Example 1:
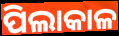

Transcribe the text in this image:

ପିଲାକାଳ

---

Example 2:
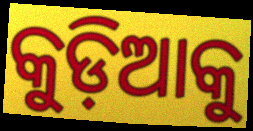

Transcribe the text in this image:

କୁଡ଼ିଆକୁ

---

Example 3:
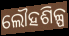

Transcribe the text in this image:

ଲୌହଶିଳ୍ପ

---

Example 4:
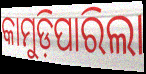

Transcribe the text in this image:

କାମୁଡ଼ିପାରିଲା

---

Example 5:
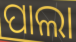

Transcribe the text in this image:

ପାଲା